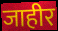
जाहीर